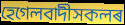
হেগেলবাদীসকলৰ